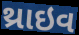
થ્રાઇવ